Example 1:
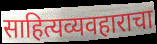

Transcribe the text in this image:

साहित्यव्यवहाराचा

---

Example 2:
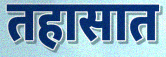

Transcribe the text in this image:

तहासात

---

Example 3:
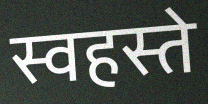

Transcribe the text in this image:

स्वहस्ते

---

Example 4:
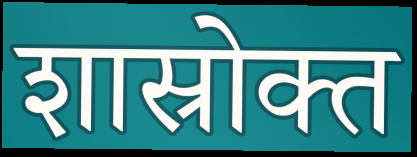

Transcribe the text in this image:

शास्रोक्त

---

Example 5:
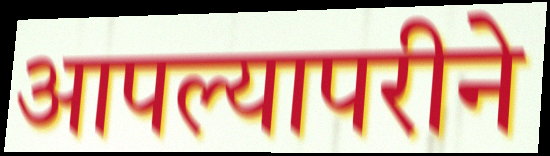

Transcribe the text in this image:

आपल्यापरीने